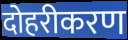
दोहरीकरण